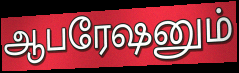
ஆபரேஷனும்